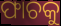
ଫାଚକୁ